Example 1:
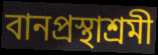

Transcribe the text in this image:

বানপ্রস্থাশ্রমী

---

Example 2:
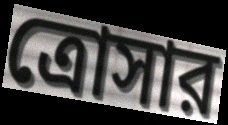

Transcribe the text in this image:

ত্রোসার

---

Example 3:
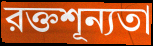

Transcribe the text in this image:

রক্তশূন্যতা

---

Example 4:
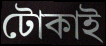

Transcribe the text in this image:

টোকাই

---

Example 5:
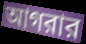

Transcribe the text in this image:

আগরার